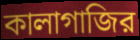
কালাগাজির